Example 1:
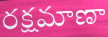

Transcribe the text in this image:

రక్షమాణా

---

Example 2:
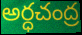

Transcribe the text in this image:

అర్ధచంద్ర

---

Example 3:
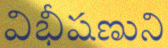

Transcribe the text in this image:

విభీషణుని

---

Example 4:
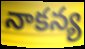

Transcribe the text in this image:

నాకన్య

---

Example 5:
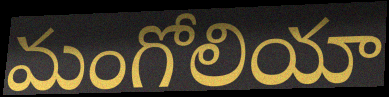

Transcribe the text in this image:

మంగోలియా